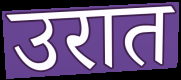
उरात